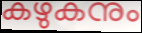
കഴുകനും